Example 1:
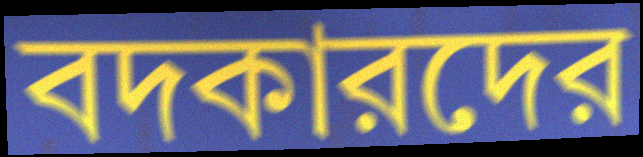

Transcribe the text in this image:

বদকারদের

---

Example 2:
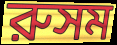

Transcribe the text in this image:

রুসম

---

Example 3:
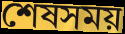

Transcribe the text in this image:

শেষসময়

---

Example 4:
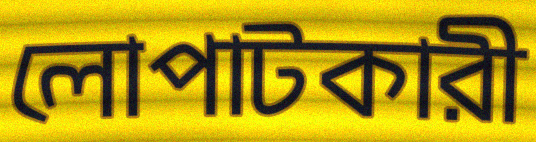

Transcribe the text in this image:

লোপাটকারী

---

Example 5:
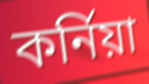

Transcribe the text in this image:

কর্নিয়া